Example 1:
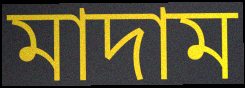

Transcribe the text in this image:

মাদাম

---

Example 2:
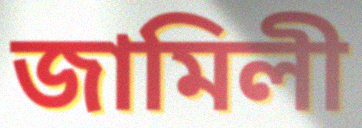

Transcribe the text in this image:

জামিলী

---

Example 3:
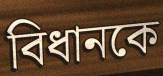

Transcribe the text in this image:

বিধানকে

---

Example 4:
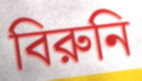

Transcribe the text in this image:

বিরুনি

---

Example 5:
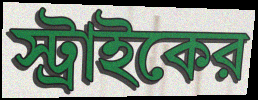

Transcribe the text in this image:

স্ট্রাইকের